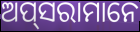
ଅପ୍‌ସରାମାନେ